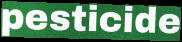
pesticide